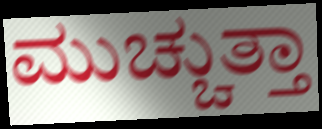
ಮುಚ್ಚುತ್ತಾ